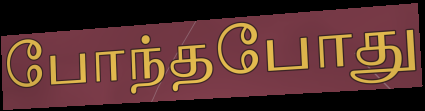
போந்தபோது